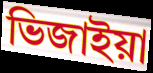
ভিজাইয়া